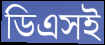
ডিএসই